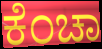
ಕೆಂಚಾ